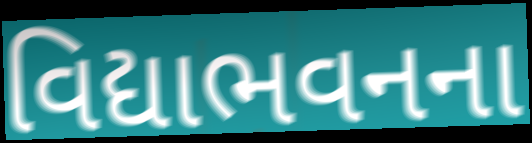
વિદ્યાભવનના